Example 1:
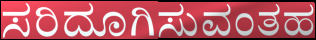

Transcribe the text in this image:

ಸರಿದೂಗಿಸುವಂತಹ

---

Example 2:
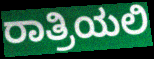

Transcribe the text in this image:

ರಾತ್ರಿಯಲಿ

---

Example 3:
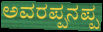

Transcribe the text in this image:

ಅವರಪ್ಪನಪ್ಪ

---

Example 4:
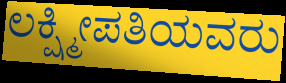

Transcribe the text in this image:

ಲಕ್ಷ್ಮೀಪತಿಯವರು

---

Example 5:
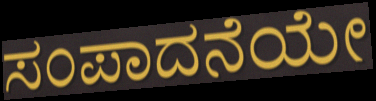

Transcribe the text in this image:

ಸಂಪಾದನೆಯೇ